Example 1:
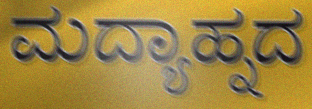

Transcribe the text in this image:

ಮದ್ಯಾಹ್ನದ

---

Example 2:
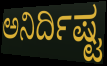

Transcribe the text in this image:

ಅನಿರ್ದಿಷ್ಟ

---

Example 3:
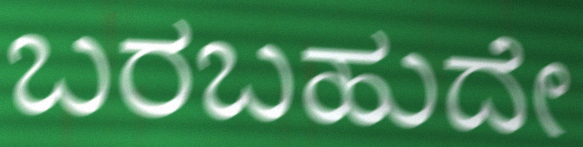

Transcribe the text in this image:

ಬರಬಹುದೇ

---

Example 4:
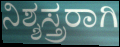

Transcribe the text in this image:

ನಿಶ್ಶಸ್ತ್ರರಾಗಿ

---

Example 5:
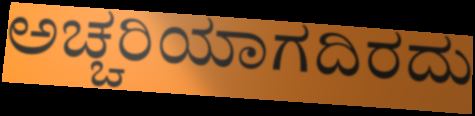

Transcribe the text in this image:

ಅಚ್ಚರಿಯಾಗದಿರದು